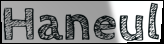
Haneul